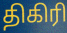
திகிரி